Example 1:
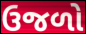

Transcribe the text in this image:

ઉજળો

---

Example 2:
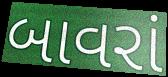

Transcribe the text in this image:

બાવરાં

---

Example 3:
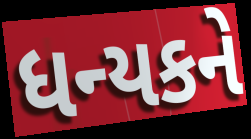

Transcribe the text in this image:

ધન્યકને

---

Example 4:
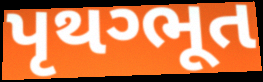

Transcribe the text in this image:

પૃથગ્ભૂત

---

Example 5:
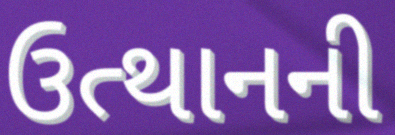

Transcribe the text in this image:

ઉત્થાનની